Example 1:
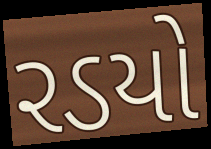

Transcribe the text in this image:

રડયો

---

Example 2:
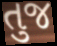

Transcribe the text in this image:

તુજ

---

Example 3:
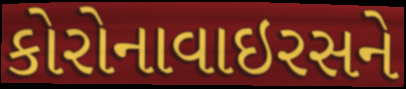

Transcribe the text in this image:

કોરોનાવાઇરસને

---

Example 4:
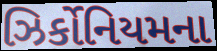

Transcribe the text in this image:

ઝિર્કોનિયમના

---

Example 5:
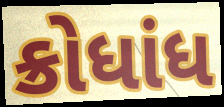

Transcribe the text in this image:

ક્રોધાંધ